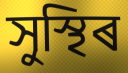
সুস্থিৰ